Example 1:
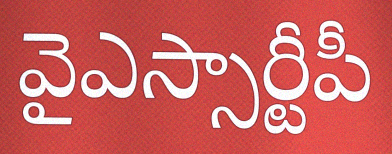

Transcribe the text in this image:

వైఎస్సార్టీపీ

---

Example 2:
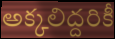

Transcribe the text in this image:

అక్కలిద్దరికీ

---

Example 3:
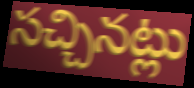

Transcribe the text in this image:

సచ్చినట్లు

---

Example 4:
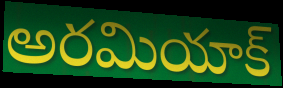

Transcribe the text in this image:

అరమియాక్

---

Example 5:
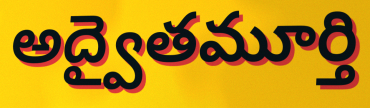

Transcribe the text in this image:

అద్వైతమూర్తి